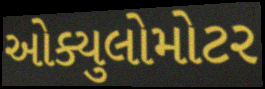
ઓક્યુલોમોટર